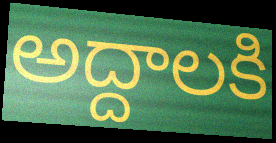
అద్దాలకి